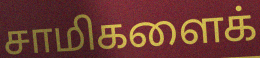
சாமிகளைக்